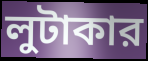
লুটাকার